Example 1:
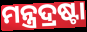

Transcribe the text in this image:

ମନ୍ତ୍ରଦ୍ରଷ୍ଟା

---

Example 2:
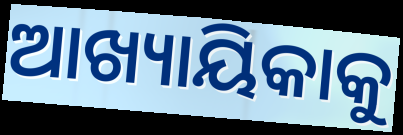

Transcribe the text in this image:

ଆଖ୍ୟାୟିକାକୁ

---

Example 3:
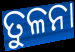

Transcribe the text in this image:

ତୁଳନା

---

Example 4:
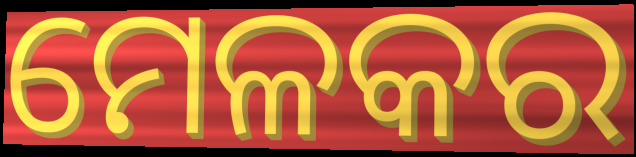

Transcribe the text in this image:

ମେଳକର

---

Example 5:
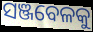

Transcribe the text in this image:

ସଞ୍ଜବେଳକୁ